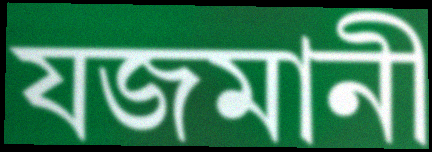
যজমানী